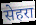
सेहरा